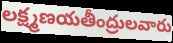
లక్ష్మణయతీంద్రులవారు